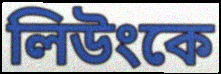
লিউংকে